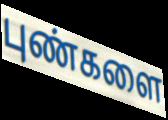
புண்களை